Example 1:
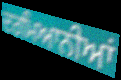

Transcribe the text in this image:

ਦਰਮਿਆਨੀਆਂ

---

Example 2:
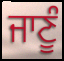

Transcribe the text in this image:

ਜਾਣੂੰ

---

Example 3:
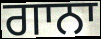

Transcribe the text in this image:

ਗਾਨਾ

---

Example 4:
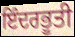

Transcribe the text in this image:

ਇੰਦਰਭੂਤੀ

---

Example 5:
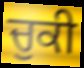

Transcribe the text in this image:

ਚੁਕੀ